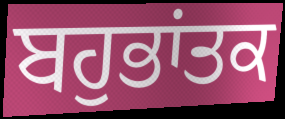
ਬਹੁਭਾਂਤਕ